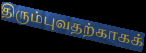
திரும்புவதற்காகக்